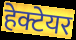
हेक्टेयर